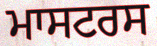
ਮਾਸਟਰਸ